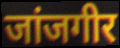
जांजगीर